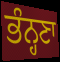
ਭੰਨ੍ਹਣਾ